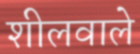
शीलवाले